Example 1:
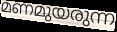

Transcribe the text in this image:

മണമുയരുന്ന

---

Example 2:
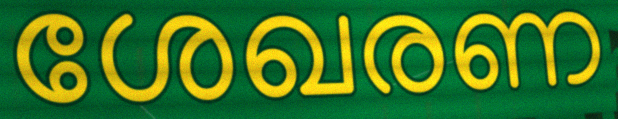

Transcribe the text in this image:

ശേഖരണ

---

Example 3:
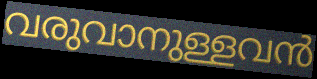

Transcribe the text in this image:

വരുവാനുള്ളവൻ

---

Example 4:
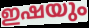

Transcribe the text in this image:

ഇഷയും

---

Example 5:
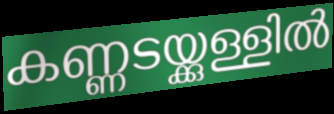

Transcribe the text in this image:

കണ്ണടയ്ക്കുള്ളിൽ